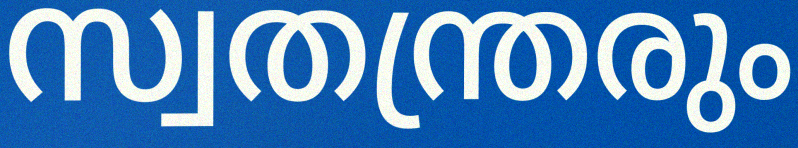
സ്വതന്ത്രരും